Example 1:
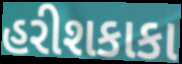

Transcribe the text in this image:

હરીશકાકા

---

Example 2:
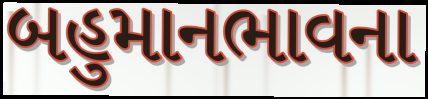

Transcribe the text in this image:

બહુમાનભાવના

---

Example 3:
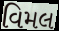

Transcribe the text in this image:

વિમલ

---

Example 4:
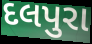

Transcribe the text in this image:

દલપુરા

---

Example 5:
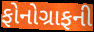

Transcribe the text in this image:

ફોનોગ્રાફની